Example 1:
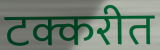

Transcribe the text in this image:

टक्करीत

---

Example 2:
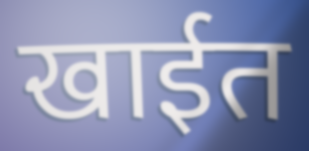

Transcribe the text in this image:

खाईत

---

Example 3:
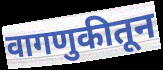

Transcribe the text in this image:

वागणुकीतून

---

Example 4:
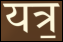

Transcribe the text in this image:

यत्र॒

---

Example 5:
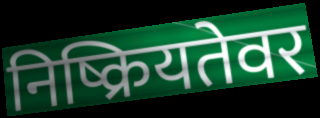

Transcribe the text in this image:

निष्क्रियतेवर